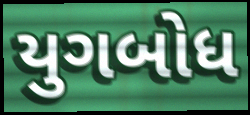
યુગબોધ